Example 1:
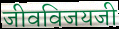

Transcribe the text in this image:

जीवविजयजी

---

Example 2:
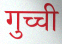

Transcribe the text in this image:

गुच्ची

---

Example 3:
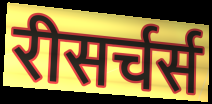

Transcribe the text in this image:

रीसर्चर्स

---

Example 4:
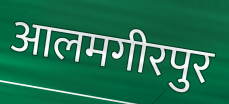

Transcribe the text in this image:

आलमगीरपुर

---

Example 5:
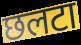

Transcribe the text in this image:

छलटा